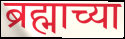
ब्रह्माच्या